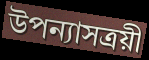
উপন্যাসত্রয়ী